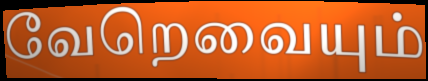
வேறெவையும்